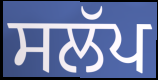
ਸਲੱਪ